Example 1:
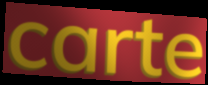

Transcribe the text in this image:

carte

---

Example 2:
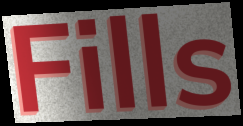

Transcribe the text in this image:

Fills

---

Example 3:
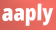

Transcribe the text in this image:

aaply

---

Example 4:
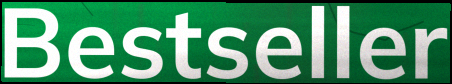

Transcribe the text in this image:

Bestseller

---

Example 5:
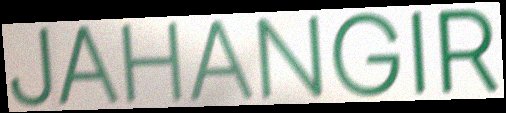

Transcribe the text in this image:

JAHANGIR